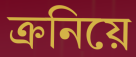
ক্রনিয়ে